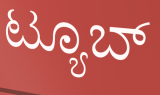
ಟ್ಯೂಬ್